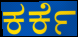
ಕರ್ಕೆ